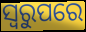
ସ୍ୱରୁପରେ